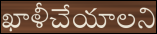
ఖాళీచేయాలని